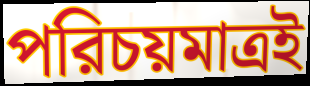
পরিচয়মাত্রই